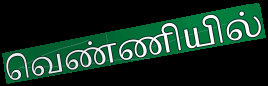
வெண்ணியில்